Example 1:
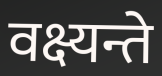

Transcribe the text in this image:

वक्ष्यन्ते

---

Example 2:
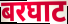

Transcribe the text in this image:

बरघाट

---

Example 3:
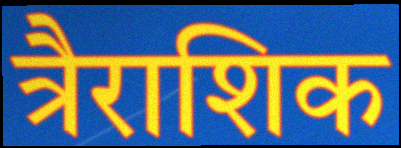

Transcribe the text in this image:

त्रैराशिक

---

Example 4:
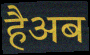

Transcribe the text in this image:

हैअब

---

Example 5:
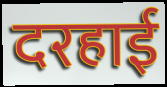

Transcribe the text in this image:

दरहाई